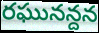
రఘునన్దన